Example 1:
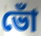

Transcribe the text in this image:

ভোঁ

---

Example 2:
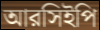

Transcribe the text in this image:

আরসিইপি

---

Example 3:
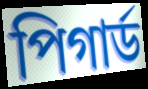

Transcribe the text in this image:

পিগার্ড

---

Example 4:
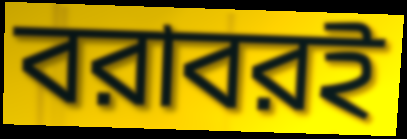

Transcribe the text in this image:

বরাবরই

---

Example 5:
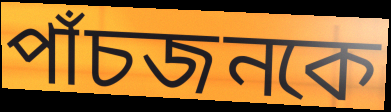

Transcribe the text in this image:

পাঁচজনকে